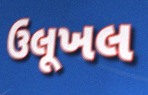
ઉલૂખલ